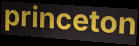
princeton